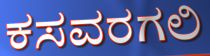
ಕಸವರಗಲಿ